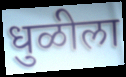
धुळीला